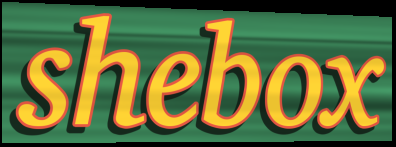
shebox